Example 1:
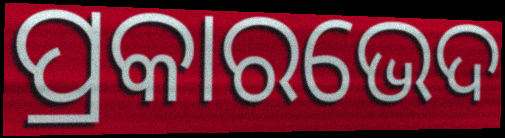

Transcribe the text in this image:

ପ୍ରକାରଭେଦ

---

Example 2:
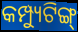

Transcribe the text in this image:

କମ୍ପ୍ୟୁଟିଙ୍ଗ୍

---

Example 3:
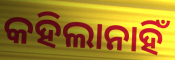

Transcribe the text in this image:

କହିଲାନାହିଁ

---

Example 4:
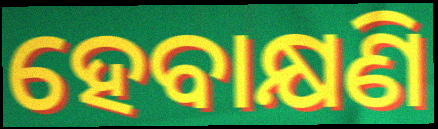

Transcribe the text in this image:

ହେବାକ୍ଷଣି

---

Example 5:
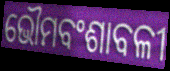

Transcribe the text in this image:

ଭୌମବଂଶାବଳୀ